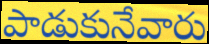
పాడుకునేవారు